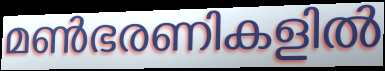
മൺഭരണികളിൽ